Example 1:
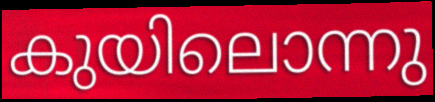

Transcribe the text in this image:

കുയിലൊന്നു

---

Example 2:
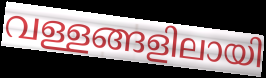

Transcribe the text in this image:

വള്ളങ്ങളിലായി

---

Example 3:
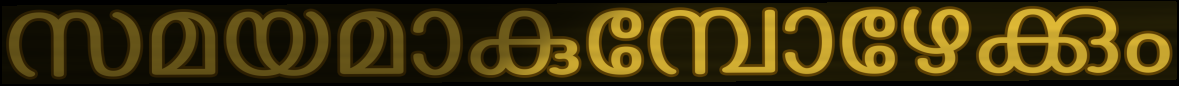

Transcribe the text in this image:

സമയമാകുമ്പോഴേക്കും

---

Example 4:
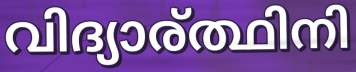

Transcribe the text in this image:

വിദ്യാര്ത്ഥിനി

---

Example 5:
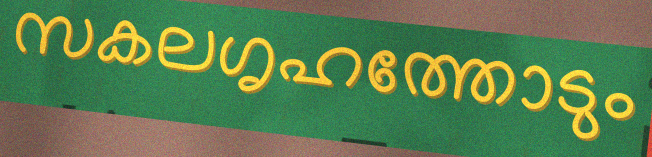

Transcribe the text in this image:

സകലഗൃഹത്തോടും